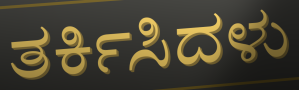
ತರ್ಕಿಸಿದಳು